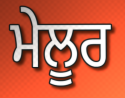
ਮੇਲੂਰ